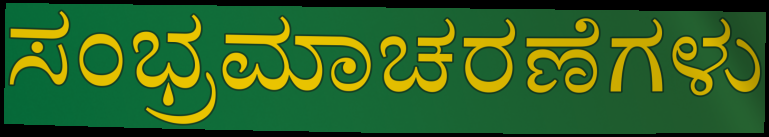
ಸಂಭ್ರಮಾಚರಣೆಗಳು